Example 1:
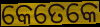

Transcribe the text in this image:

କେତେକେ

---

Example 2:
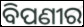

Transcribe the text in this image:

ବିପଣୀର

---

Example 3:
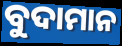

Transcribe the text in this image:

ବୁଦାମାନ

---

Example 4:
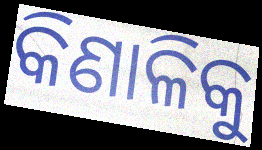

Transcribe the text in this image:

କିଣାଳିକୁ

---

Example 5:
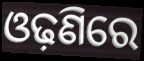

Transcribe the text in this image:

ଓଢ଼ଣିରେ